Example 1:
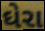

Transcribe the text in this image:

ઘેરા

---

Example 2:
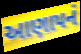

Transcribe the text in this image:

આણાપનં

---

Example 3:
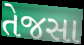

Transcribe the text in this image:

તેજસા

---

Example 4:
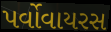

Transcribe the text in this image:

પર્વોવાયરસ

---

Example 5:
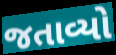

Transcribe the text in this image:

જતાવ્યો